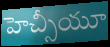
హెచ్సీయూ